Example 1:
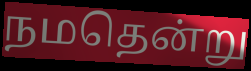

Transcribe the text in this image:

நமதென்று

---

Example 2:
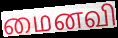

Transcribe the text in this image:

மைனவி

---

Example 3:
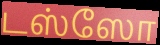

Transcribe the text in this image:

டஸ்ஸோ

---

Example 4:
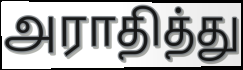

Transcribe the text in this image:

அராதித்து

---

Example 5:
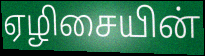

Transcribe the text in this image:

ஏழிசையின்